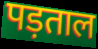
पड़ताल